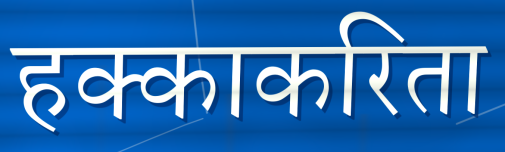
हक्काकरिता